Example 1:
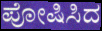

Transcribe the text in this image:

ಪೋಷಿಸಿದ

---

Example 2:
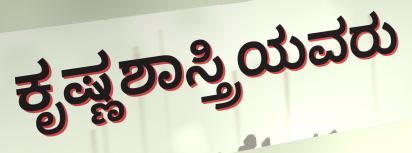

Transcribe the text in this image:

ಕೃಷ್ಣಶಾಸ್ತ್ರಿಯವರು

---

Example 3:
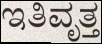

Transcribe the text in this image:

ಇತಿವೃತ್ತ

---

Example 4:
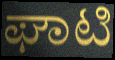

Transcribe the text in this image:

ಘಾಟಿ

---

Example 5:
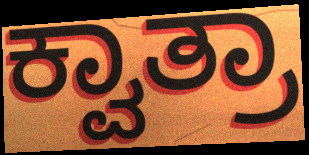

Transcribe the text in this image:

ಕ್ವಾತ್ರಾ